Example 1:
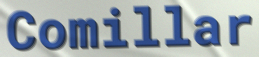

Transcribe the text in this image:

Comillar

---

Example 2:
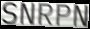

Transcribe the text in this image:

SNRPN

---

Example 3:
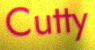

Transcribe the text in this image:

Cutty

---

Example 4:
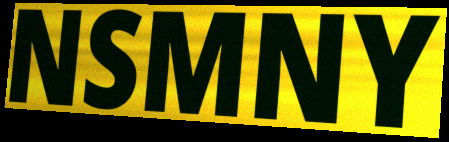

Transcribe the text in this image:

NSMNY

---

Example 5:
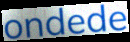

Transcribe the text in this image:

ondede